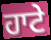
ਹਾਟੇ